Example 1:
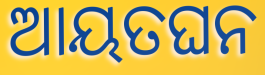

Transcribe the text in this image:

ଆୟତଘନ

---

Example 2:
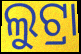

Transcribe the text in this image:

ଲୁଟ୍ରା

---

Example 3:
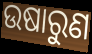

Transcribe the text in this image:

ଉଷାରୁଣ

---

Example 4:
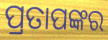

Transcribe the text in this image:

ପ୍ରତାପଙ୍କର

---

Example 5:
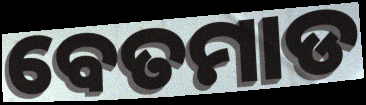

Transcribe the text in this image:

ବେତମାଡ